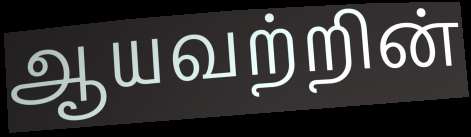
ஆயவற்றின்